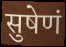
सुषेणं